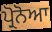
ਪ੍ਰੋਨੋਆ